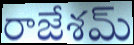
రాజేశమ్